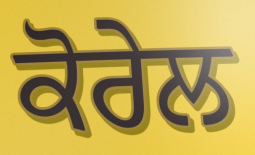
ਕੋਰੇਲ